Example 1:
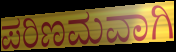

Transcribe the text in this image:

ಪರಿಣಮವಾಗಿ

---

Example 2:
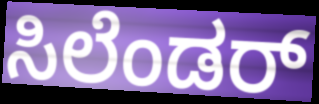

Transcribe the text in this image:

ಸಿಲೆಂಡರ್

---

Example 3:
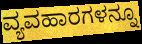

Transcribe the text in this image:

ವ್ಯವಹಾರಗಳನ್ನೂ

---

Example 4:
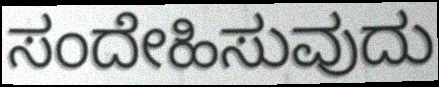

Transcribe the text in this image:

ಸಂದೇಹಿಸುವುದು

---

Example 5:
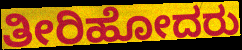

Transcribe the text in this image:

ತೀರಿಹೋದರು